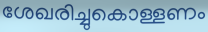
ശേഖരിച്ചുകൊള്ളണം